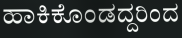
ಹಾಕಿಕೊಂಡದ್ದರಿಂದ